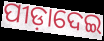
ପୀଡ଼ାଦେଇ